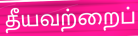
தீயவற்றைப்